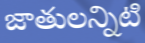
జాతులన్నిటి